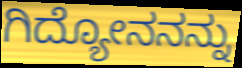
ಗಿದ್ಯೋನನನ್ನು